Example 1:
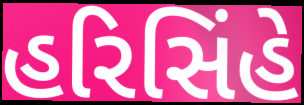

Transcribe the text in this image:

હરિસિંહે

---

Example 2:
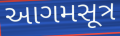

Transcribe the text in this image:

આગમસૂત્ર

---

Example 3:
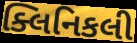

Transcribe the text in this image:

ક્લિનિકલી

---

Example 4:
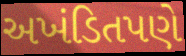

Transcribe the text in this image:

અખંડિતપણે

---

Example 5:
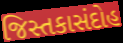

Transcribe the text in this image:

જિસ્તકાસંદોહ